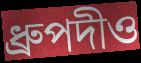
ধ্রুপদীও